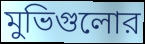
মুভিগুলোর